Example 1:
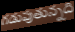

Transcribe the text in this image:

గడుపుతున్నది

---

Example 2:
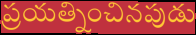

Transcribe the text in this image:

ప్రయత్నించినపుడు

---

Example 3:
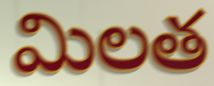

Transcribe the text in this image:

మిలత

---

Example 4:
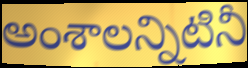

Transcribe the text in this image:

అంశాలన్నిటినీ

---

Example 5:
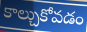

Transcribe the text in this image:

కాల్చుకోవడం